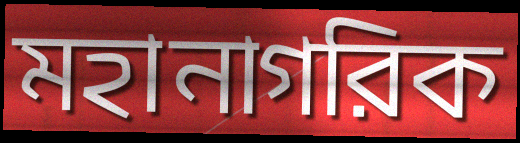
মহানাগরিক